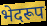
भेदरूप